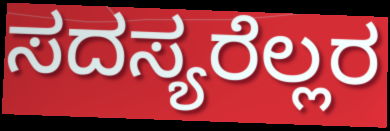
ಸದಸ್ಯರೆಲ್ಲರ